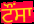
ਟੌਂਸਾ